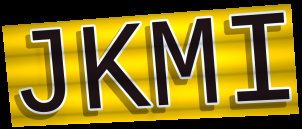
JKMI